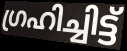
ഗ്രഹിച്ചിട്ട്